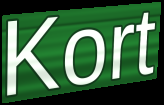
Kort